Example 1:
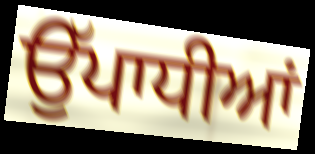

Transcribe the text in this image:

ਉੱਪਾਧੀਆਂ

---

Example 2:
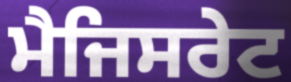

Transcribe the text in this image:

ਮੈਜਿਸਰੇਟ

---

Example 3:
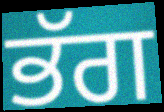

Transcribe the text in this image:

ਭੱਗ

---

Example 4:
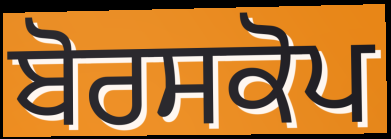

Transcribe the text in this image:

ਬੋਰਸਕੋਪ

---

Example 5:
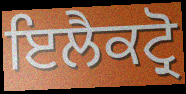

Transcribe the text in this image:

ਇਲੈਕਟ੍ਰੋ